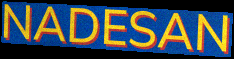
NADESAN